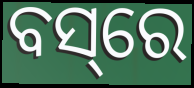
ବସ୍‌ରେ